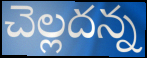
చెల్లదన్న